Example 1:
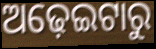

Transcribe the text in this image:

ଅଢ଼େଇଟାରୁ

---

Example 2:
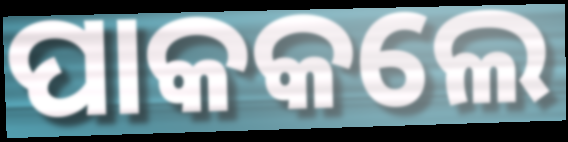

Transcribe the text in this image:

ପାକକଲେ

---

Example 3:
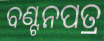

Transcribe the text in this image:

ବଣ୍ଟନପତ୍ର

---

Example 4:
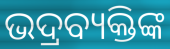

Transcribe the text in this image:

ଭଦ୍ରବ୍ୟକ୍ତିଙ୍କ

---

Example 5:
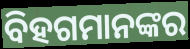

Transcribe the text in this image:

ବିହଗମାନଙ୍କର